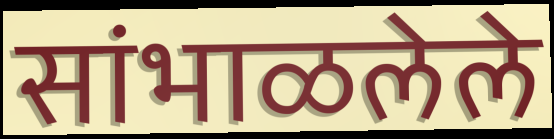
सांभाळलेले